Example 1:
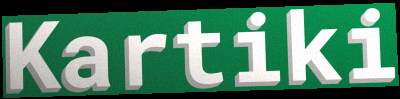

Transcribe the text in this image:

Kartiki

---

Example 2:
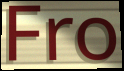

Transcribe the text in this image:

Fro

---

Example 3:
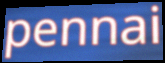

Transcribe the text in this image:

pennai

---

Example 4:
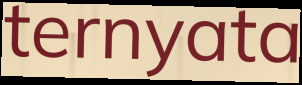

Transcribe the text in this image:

ternyata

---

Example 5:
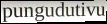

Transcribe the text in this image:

pungudutivu